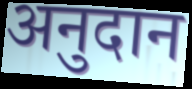
अनुदान